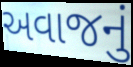
અવાજનું